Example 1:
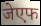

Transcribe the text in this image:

जेएफ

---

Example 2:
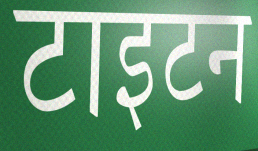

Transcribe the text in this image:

टाइटन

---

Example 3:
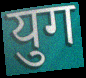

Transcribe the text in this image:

युग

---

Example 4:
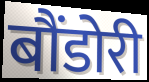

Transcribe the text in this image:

बौंडोरी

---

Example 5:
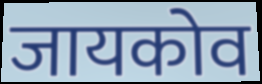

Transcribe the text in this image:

जायकोव